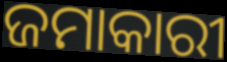
ଜମାକାରୀ